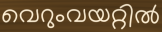
വെറുംവയറ്റിൽ